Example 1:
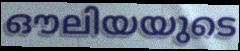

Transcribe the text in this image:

ഔലിയയുടെ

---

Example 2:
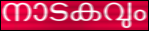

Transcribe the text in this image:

നാടകവും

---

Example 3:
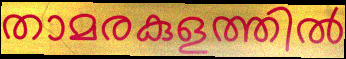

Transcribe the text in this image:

താമരകുളത്തിൽ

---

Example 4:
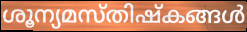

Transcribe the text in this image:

ശൂന്യമസ്തിഷ്കങ്ങൾ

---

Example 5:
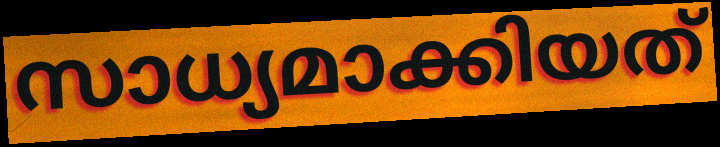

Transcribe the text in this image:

സാധ്യമാക്കിയത്